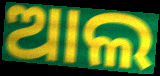
ଆଲ